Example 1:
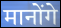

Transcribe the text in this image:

मानोंगे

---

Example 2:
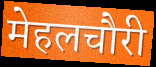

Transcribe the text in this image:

मेहलचौरी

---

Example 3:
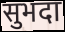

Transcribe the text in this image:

सुभदा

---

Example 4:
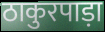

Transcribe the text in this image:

ठाकुरपाड़ा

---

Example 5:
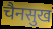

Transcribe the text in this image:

चैनसुख